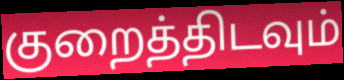
குறைத்திடவும்